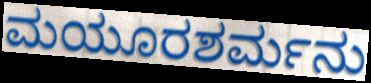
ಮಯೂರಶರ್ಮನು